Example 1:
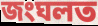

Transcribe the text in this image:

জংঘলত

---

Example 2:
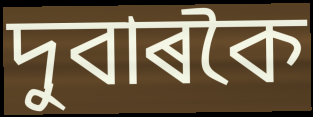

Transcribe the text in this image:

দুবাৰকৈ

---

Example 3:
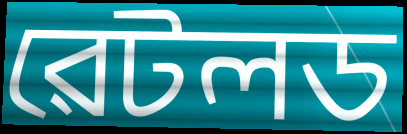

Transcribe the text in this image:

ৱেটলড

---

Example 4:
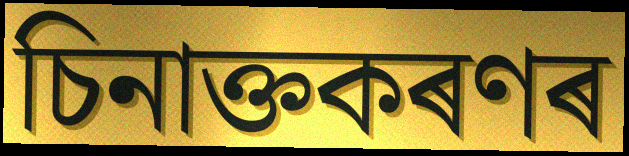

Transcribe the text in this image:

চিনাক্তকৰণৰ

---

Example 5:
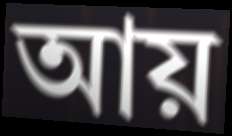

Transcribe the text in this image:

আয়